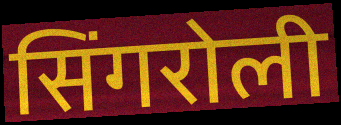
सिंगरोली